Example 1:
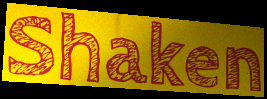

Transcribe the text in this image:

Shaken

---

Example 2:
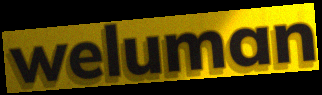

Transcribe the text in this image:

weluman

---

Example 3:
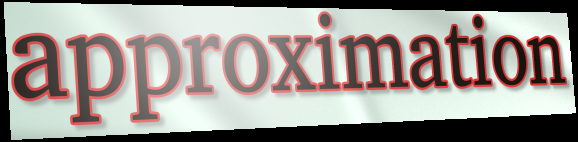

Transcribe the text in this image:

approximation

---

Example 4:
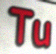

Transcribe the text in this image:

Tu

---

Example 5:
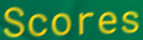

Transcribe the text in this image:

Scores